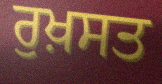
ਰੁਖ਼ਸਤ